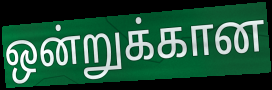
ஒன்றுக்கான